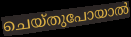
ചെയ്തുപോയാൽ